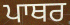
ਪਾਥਰ